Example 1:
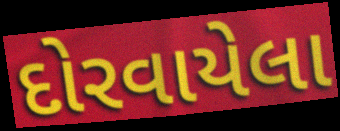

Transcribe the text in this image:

દોરવાયેલા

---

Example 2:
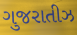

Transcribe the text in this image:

ગુજરાતીઝ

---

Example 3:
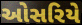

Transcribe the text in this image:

ઓસરિયે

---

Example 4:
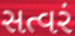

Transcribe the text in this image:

સત્વરં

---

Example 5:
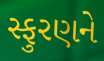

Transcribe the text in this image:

સ્ફુરણને